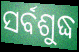
ସର୍ବଶୁଦ୍ଧ